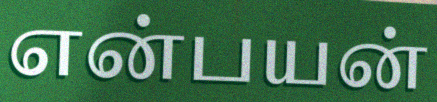
என்பயன்